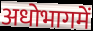
अधोभागमें